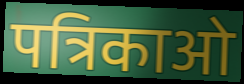
पत्रिकाओ